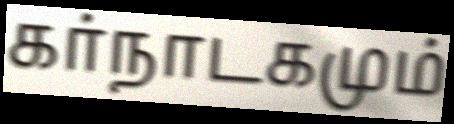
கர்நாடகமும்